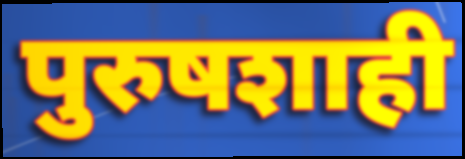
पुरुषशाही